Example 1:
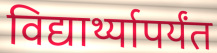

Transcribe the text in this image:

विद्यार्थ्यापर्यंत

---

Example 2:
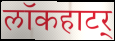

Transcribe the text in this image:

लॉकहाटर्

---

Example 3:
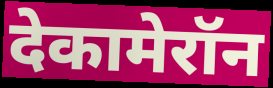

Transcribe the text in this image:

देकामेरॉन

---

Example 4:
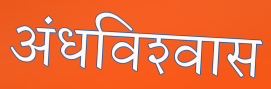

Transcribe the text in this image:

अंधविश्वास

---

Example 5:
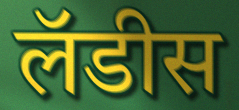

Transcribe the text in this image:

लॅडीस